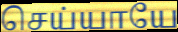
செய்யாயே